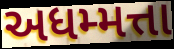
અધમ્મત્તા